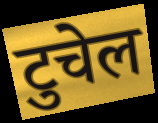
टुचेल